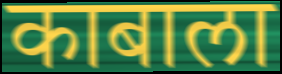
काबाला